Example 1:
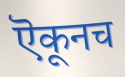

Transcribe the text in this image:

ऎकूनच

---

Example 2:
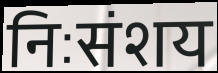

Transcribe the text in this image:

निःसंशय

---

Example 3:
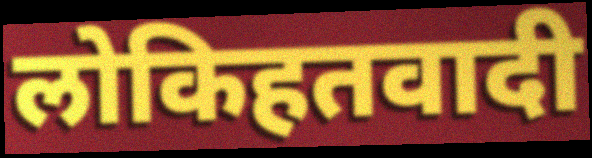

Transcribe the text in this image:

लोकिहतवादी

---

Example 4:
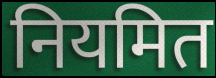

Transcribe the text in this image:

नियमित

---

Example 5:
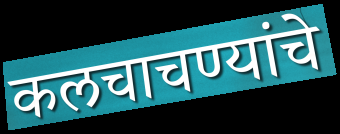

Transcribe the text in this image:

कलचाचण्यांचे